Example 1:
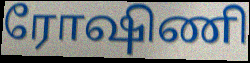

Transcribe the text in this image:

ரோஷிணி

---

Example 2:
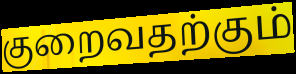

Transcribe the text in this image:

குறைவதற்கும்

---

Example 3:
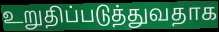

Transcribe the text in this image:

உறுதிப்படுத்துவதாக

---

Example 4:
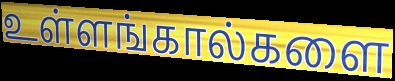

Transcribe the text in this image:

உள்ளங்கால்களை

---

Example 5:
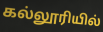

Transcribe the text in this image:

கல்லூரியில்